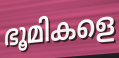
ഭൂമികളെ